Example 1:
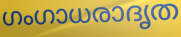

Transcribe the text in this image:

ഗംഗാധരാദൃത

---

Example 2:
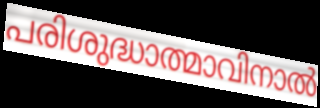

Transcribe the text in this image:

പരിശുദ്ധാത്മാവിനാൽ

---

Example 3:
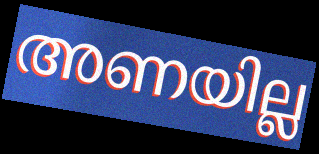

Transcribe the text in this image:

അണയില്ല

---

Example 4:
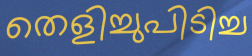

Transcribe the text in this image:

തെളിച്ചുപിടിച്ച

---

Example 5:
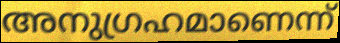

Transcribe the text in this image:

അനുഗ്രഹമാണെന്ന്